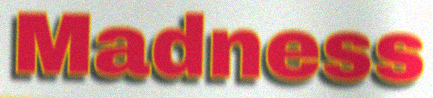
Madness